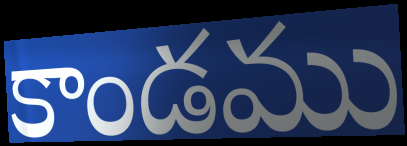
కాండము